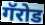
गॅरोड